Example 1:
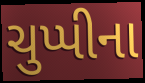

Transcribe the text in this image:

ચુપ્પીના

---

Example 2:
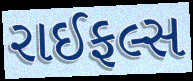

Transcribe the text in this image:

રાઈફલ્સ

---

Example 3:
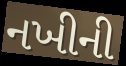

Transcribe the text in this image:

નખીની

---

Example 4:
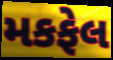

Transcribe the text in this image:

મકફેલ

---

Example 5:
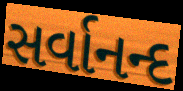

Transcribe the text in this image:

સર્વાનન્દ